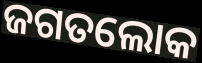
ଜଗତଲୋକ